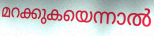
മറക്കുകയെന്നാൽ